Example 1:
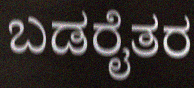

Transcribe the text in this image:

ಬಡರೈತರ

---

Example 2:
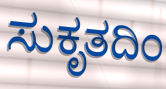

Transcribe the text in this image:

ಸುಕೃತದಿಂ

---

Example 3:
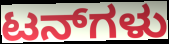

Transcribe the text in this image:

ಟನ್‌ಗಳು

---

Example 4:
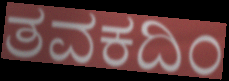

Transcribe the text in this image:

ತವಕದಿಂ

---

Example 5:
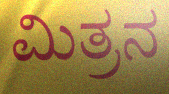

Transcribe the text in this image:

ಮಿತ್ರನ